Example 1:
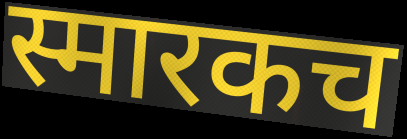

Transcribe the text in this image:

स्मारकच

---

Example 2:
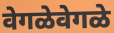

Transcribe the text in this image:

वेगळेवेगळे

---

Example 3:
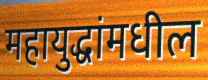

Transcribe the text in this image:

महायुद्धांमधील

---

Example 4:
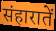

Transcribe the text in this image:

संहारातें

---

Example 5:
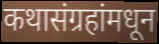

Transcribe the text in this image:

कथासंग्रहांमधून